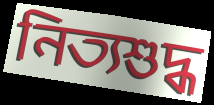
নিত্যশুদ্ধ